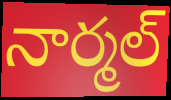
నార్మల్